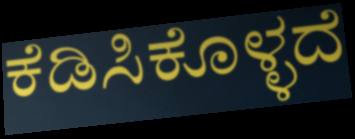
ಕೆಡಿಸಿಕೊಳ್ಳದೆ